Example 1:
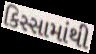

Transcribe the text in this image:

કિસ્સામાંથી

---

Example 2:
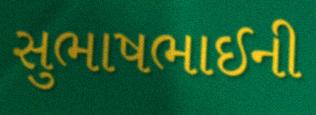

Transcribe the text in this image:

સુભાષભાઈની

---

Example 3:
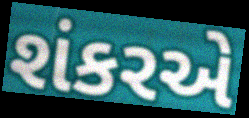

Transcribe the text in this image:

શંકરએ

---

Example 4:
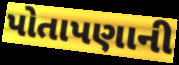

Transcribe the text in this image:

પોતાપણાની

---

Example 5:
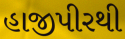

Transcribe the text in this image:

હાજીપીરથી